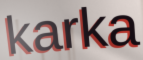
karka